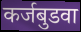
कर्जबुडवा